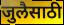
जुलैसाठी